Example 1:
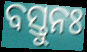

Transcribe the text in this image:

ବସ୍ତୁନଃ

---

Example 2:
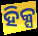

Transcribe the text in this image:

ହିକ୍ସ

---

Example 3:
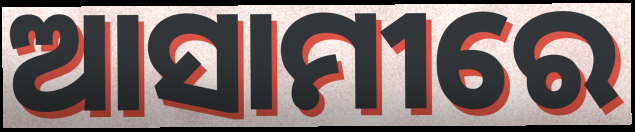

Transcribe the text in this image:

ଆସାମୀରେ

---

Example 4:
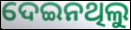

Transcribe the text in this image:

ଦେଇନଥିଲୁ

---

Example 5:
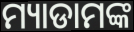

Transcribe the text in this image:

ମ୍ୟାଡାମଙ୍କ